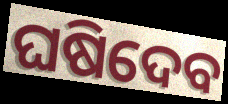
ଘଷିଦେବ